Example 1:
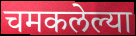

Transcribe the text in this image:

चमकलेल्या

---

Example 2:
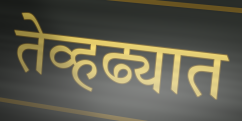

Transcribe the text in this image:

तेव्हढ्यात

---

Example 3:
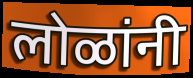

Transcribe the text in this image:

लोळांनी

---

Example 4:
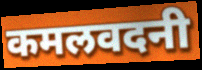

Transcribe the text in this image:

कमलवदनी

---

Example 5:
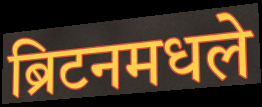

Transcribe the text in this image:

ब्रिटनमधले